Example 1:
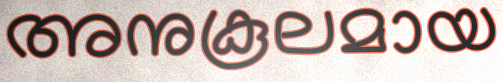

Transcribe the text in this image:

അനുകൂലമായ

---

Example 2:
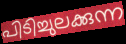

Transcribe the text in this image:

പിടിച്ചുലക്കുന്ന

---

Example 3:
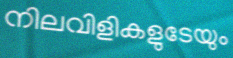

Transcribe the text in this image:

നിലവിളികളുടേയും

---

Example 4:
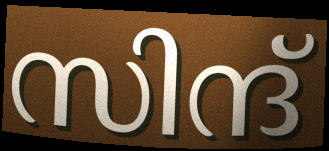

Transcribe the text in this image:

സിന്ദ്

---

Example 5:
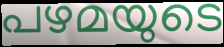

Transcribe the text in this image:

പഴമയുടെ